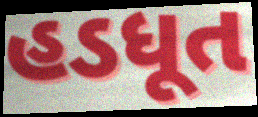
હડધૂત